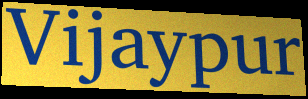
Vijaypur